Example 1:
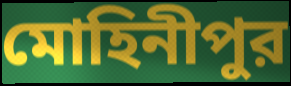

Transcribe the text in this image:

মোহিনীপুর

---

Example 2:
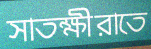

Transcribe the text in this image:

সাতক্ষীরাতে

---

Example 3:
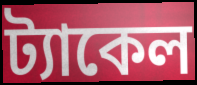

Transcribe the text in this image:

ট্যাকেল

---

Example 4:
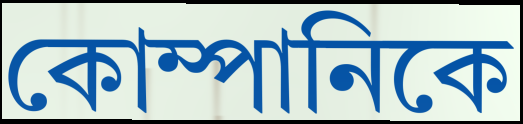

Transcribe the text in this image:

কোম্পানিকে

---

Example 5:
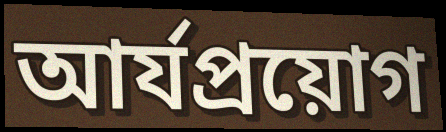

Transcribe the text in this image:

আর্যপ্রয়োগ